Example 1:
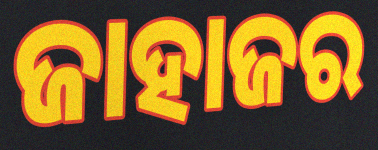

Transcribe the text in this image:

ଜାହାଜର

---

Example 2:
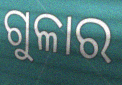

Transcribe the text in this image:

ଗୁଳାର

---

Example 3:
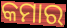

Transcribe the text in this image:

କମାର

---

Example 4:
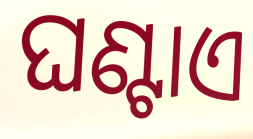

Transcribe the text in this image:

ଘଣ୍ଟାଏ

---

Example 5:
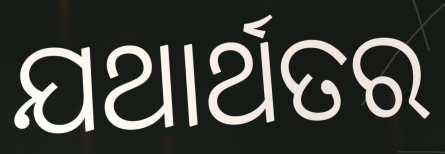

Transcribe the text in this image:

ଯଥାର୍ଥତର